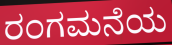
ರಂಗಮನೆಯ